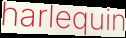
harlequin